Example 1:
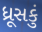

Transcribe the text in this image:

ધ્રૂસકું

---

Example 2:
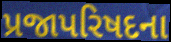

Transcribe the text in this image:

પ્રજાપરિષદના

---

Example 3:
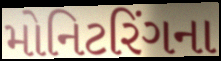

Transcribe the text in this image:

મોનિટરિંગના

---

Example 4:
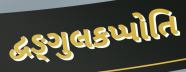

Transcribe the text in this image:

દ્વઙ્ગુલકપ્પોતિ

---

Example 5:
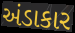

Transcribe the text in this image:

અંડાકાર